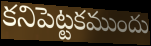
కనిపెట్టకముందు